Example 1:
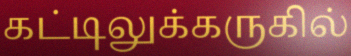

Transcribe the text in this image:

கட்டிலுக்கருகில்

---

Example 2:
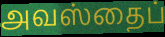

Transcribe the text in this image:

அவஸ்தைப்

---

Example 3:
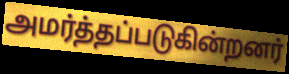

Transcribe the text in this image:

அமர்த்தப்படுகின்றனர்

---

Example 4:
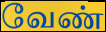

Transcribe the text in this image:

வேண்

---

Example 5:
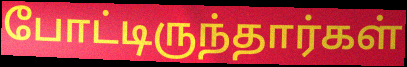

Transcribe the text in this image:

போட்டிருந்தார்கள்